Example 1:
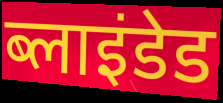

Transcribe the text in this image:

ब्लाइंडेड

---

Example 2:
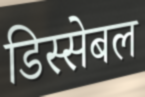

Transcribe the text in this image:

डिस्सेबल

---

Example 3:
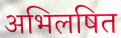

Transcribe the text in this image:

अभिलषित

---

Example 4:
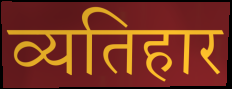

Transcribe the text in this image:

व्यतिहार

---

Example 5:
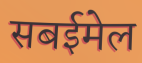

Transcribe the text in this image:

सबईमेल